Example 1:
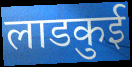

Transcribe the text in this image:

लाडकुई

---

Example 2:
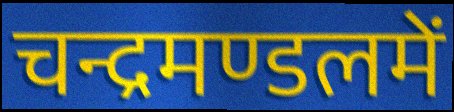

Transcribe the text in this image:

चन्द्रमण्डलमें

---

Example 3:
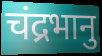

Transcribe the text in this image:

चंद्रभानु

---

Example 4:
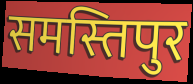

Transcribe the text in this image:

समस्तिपुर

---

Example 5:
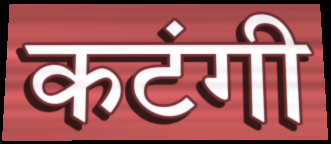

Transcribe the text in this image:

कटंगी